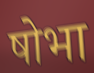
षोभा